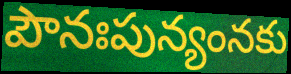
పౌనఃపున్యంనకు